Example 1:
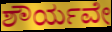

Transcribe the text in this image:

ಶೌರ್ಯವೇ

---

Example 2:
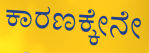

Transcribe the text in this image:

ಕಾರಣಕ್ಕೇನೇ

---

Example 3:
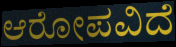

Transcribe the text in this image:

ಆರೋಪವಿದೆ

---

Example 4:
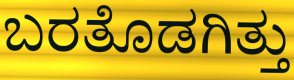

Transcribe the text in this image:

ಬರತೊಡಗಿತ್ತು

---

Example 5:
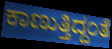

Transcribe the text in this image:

ಕಾಣುತ್ತಿದ್ದಂತೆ